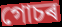
গোচৰ